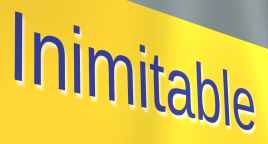
Inimitable